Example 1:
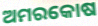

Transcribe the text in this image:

ଅମରକୋଷ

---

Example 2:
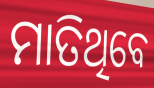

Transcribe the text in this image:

ମାତିଥିବେ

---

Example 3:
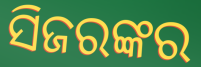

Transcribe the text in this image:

ସିଜରଙ୍କର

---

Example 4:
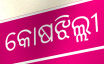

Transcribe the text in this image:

କୋଷଝିଲ୍ଲୀ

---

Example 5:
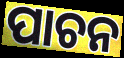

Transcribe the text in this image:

ପାଚନ